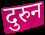
दुरुन